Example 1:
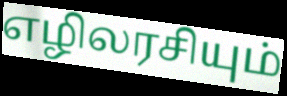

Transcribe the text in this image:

எழிலரசியும்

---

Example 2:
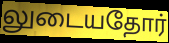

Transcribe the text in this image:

லுடையதோர்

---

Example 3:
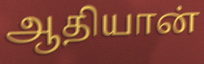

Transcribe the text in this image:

ஆதியான்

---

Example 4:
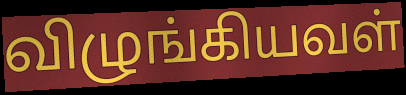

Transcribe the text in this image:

விழுங்கியவள்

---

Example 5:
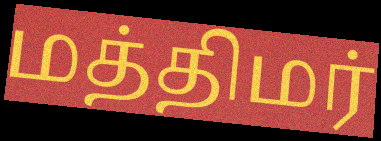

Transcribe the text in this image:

மத்திமர்